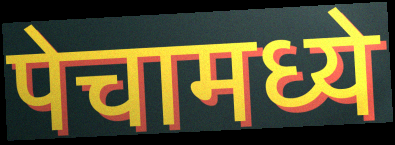
पेचामध्ये